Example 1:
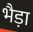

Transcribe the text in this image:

भैड़ा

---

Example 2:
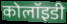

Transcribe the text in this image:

कोलॉइडी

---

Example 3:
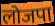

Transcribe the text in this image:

लोजपा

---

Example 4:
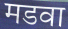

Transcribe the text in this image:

मडवा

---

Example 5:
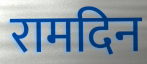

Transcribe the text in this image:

रामदिन